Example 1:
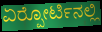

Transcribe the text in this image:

ಏರ್‍ಪೋರ್ಟಿನಲ್ಲಿ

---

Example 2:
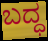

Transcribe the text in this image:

ಬದ್ಧ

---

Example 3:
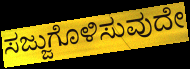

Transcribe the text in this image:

ಸಜ್ಜುಗೊಳಿಸುವುದೇ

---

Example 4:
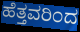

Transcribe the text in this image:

ಹೆತ್ತವರಿಂದ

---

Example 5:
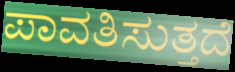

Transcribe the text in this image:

ಪಾವತಿಸುತ್ತದೆ